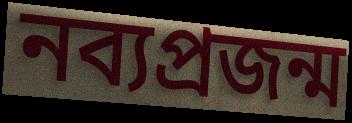
নব্যপ্রজন্ম